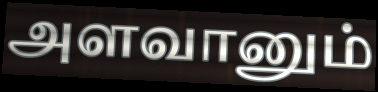
அளவானும்